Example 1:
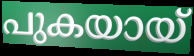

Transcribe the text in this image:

പുകയായ്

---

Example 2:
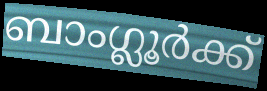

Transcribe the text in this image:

ബാംഗ്ലൂർക്ക്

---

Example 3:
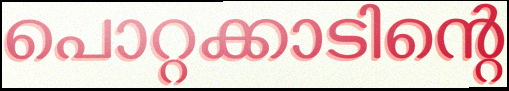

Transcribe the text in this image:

പൊറ്റക്കാടിന്റെ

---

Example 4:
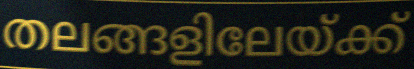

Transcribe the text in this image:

തലങ്ങളിലേയ്ക്ക്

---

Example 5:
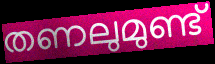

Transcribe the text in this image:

തണലുമുണ്ട്